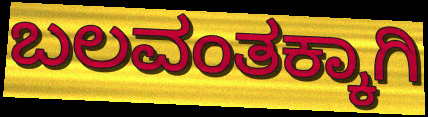
ಬಲವಂತಕ್ಕಾಗಿ